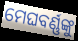
ମେଘବର୍ଣ୍ଣଙ୍କୁ